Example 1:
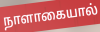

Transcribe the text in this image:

நாளாகையால்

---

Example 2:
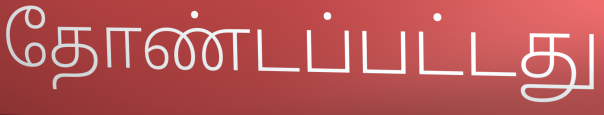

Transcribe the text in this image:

தோண்டப்பட்டது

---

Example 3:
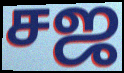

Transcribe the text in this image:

சஜ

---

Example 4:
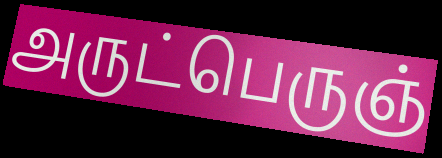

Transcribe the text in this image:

அருட்பெருஞ்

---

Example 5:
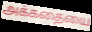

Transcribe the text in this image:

அக்கதையை